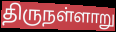
திருநள்ளாறு